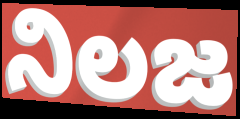
నిలజ